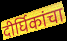
दीर्घिकांचा